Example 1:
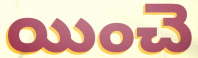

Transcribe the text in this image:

యించె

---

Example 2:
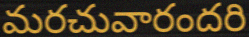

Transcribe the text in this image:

మరచువారందరి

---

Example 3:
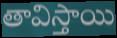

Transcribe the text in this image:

తావిస్తాయి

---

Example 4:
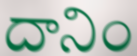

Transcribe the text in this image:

దానిం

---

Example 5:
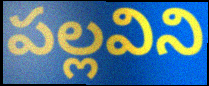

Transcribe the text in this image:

పల్లవిని